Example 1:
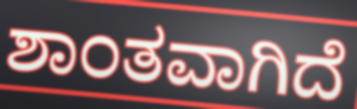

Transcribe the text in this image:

ಶಾಂತವಾಗಿದೆ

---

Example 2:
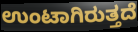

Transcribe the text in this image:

ಉಂಟಾಗಿರುತ್ತದೆ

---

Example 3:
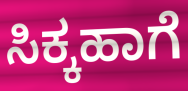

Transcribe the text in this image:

ಸಿಕ್ಕಹಾಗೆ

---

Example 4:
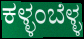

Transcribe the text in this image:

ಕಳ್ಳಂಬೆಳ್ಳ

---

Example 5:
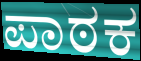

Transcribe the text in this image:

ಪಾಠಕ